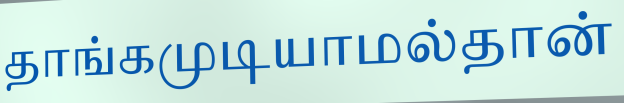
தாங்கமுடியாமல்தான்